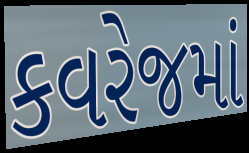
કવરેજમાં